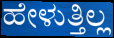
ಹೇಳುತ್ತಿಲ್ಲ